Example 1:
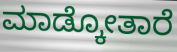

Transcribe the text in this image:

ಮಾಡ್ಕೋತಾರೆ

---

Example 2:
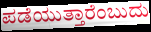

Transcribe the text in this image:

ಪಡೆಯುತ್ತಾರೆಂಬುದು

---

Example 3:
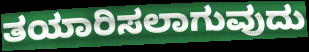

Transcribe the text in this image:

ತಯಾರಿಸಲಾಗುವುದು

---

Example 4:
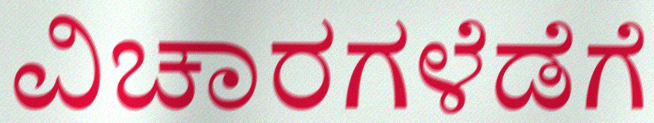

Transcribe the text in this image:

ವಿಚಾರಗಳೆಡೆಗೆ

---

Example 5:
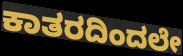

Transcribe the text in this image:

ಕಾತರದಿಂದಲೇ